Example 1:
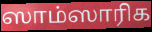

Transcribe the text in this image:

ஸாம்ஸாரிக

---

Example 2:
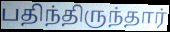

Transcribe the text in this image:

பதிந்திருந்தார்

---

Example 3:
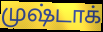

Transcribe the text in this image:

முஷ்டாக்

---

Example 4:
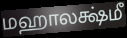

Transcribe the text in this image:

மஹாலக்ஷ்மீ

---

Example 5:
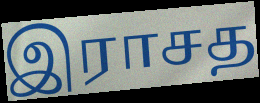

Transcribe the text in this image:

இராசத